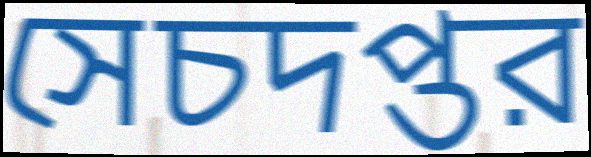
সেচদপ্তর